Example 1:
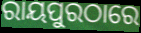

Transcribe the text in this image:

ରାୟପୁରଠାରେ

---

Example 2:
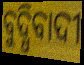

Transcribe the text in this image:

ବୁଦ୍ଧିବାଦୀ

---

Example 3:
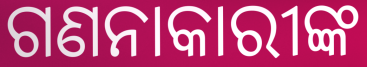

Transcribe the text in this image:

ଗଣନାକାରୀଙ୍କ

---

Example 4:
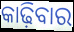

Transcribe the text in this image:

କାଢ଼ିବାର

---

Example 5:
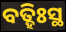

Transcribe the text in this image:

ବତ୍ହିଃସ୍ଥ